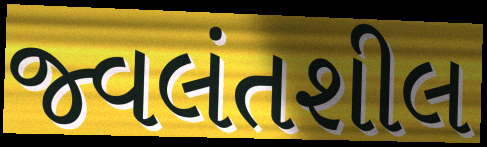
જ્વલંતશીલ